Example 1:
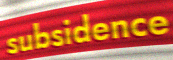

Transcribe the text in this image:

subsidence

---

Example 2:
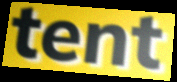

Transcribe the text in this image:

tent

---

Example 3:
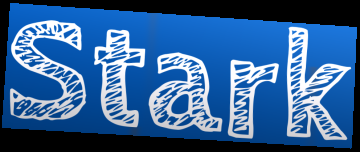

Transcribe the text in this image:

Stark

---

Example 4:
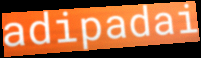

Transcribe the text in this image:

adipadai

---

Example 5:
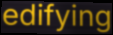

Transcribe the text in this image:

edifying